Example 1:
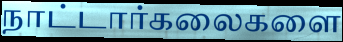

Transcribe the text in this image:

நாட்டார்கலைகளை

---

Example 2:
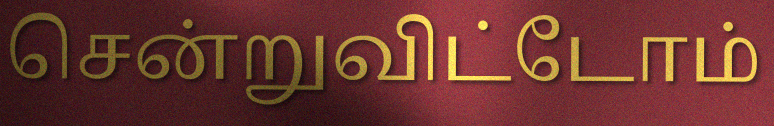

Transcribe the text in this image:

சென்றுவிட்டோம்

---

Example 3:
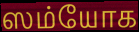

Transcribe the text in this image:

ஸம்யோக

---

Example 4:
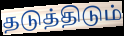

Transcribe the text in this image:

தடுத்திடும்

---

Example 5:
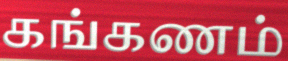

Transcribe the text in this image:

கங்கணம்